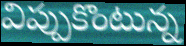
విప్పుకొంటున్న